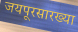
जयपूरसारख्या